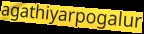
agathiyarpogalur